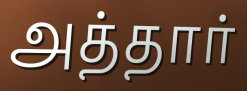
அத்தார்